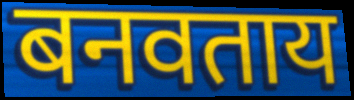
बनवताय